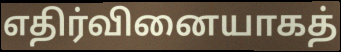
எதிர்வினையாகத்